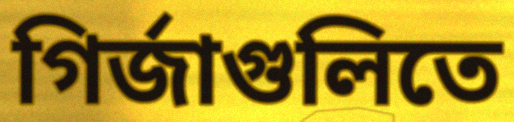
গির্জাগুলিতে